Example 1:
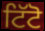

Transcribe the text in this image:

ਟਿੱਟੋ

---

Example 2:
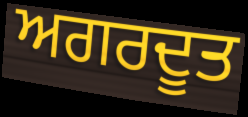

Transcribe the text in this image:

ਅਗਰਦੂਤ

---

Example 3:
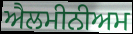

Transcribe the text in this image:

ਐਲਮੀਨੀਅਮ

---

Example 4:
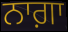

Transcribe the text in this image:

ਨਾਗ਼ਾ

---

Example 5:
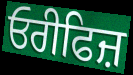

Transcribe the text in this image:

ਓਰੀਫਿਜ਼